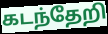
கடந்தேறி